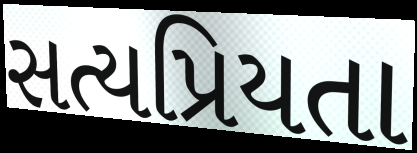
સત્યપ્રિયતા